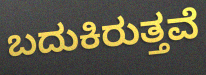
ಬದುಕಿರುತ್ತವೆ